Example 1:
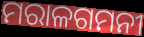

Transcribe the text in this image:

ମରାଳଗମନୀ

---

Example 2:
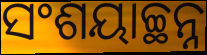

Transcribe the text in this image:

ସଂଶୟାଚ୍ଛନ୍ନ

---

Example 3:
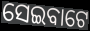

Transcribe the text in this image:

ସେଇବାଟେ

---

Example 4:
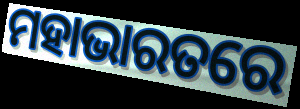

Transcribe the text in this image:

ମହାଭାରତରେ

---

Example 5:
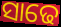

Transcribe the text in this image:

ସାଢେ